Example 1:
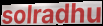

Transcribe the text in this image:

solradhu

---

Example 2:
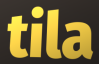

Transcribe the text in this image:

tila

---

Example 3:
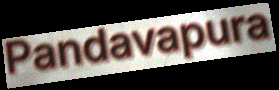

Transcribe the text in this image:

Pandavapura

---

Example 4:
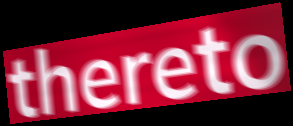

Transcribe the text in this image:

thereto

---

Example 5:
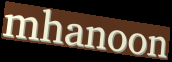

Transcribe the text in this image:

mhanoon